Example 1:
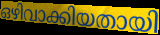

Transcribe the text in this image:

ഒഴിവാക്കിയതായി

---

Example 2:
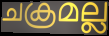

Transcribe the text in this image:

ചക്രമല്ല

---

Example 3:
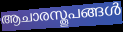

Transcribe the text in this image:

ആചാരസ്തൂപങ്ങൾ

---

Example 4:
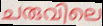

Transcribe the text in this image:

ചരുവിലെ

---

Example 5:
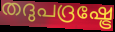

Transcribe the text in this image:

തദുപദ്രഷ്ട്രേ